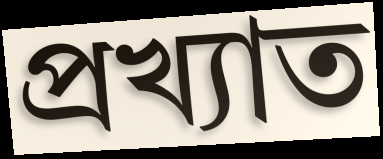
প্রখ্যাত